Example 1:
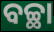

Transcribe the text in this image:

ବଚ୍ଛା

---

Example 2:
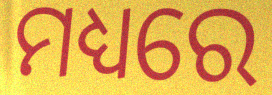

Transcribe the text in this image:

ମଧ୍ଯରେ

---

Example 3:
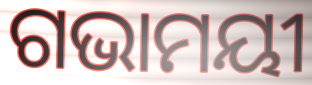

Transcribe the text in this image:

ଗଭାମୟୀ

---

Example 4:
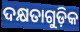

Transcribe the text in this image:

ଦକ୍ଷତାଗୁଡ଼ିକ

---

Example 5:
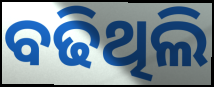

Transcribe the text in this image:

ବଢିଥିଲି